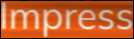
Impress